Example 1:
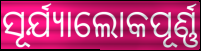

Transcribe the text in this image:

ସୂର୍ଯ୍ୟାଲୋକପୂର୍ଣ୍ଣ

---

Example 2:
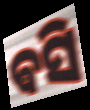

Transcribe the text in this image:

ଵସି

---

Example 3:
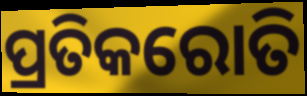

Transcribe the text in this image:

ପ୍ରତିକରୋତି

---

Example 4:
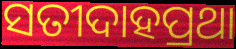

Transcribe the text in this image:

ସତୀଦାହପ୍ରଥା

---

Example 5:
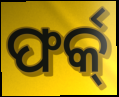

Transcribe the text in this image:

ଫର୍କ୍